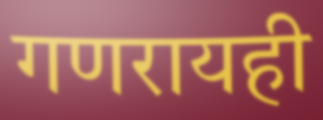
गणरायही